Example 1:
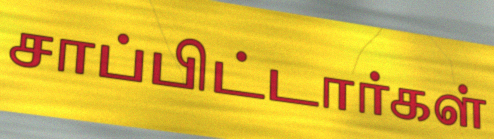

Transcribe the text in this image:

சாப்பிட்டார்கள்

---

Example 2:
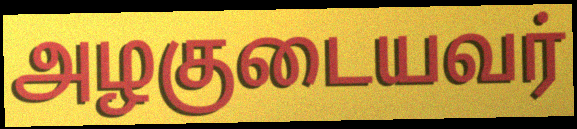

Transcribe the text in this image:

அழகுடையவர்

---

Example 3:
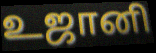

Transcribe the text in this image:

உஜானி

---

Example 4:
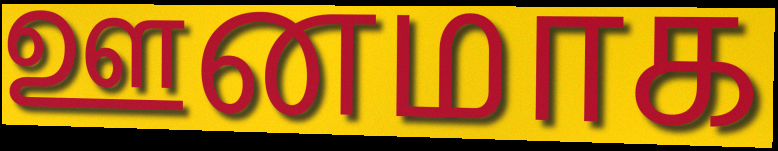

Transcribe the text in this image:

ஊனமாக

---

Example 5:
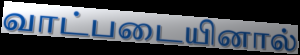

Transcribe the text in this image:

வாட்படையினால்